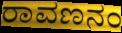
ರಾವಣನಂ